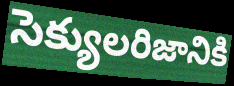
సెక్యులరిజానికి